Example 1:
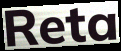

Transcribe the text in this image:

Reta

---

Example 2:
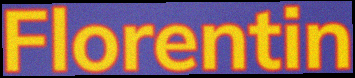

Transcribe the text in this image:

Florentin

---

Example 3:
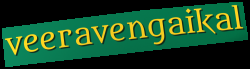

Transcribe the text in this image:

veeravengaikal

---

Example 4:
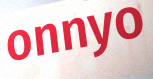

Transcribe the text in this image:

onnyo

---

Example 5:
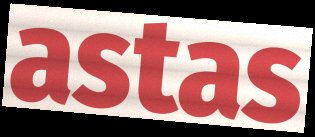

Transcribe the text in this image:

astas